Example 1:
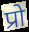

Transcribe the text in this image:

प्रो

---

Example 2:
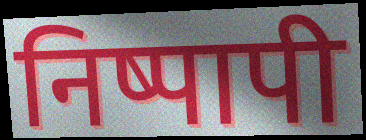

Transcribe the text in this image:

निष्पापी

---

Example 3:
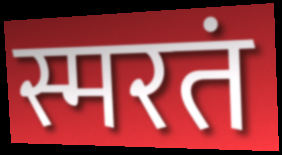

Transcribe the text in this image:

स्मरतं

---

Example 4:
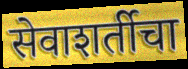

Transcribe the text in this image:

सेवाशर्तीचा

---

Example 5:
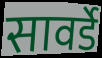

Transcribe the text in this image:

सावर्डे